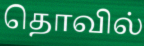
தொவில்